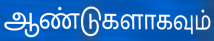
ஆண்டுகளாகவும்